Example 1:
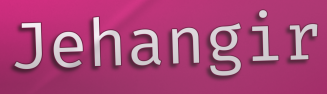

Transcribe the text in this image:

Jehangir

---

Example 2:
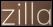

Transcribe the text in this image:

zilla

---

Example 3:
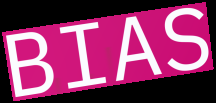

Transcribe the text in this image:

BIAS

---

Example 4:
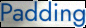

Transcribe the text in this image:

Padding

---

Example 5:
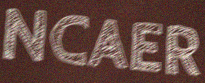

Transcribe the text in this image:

NCAER